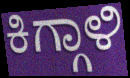
ಕಿಗ್ಗಾಳಿ